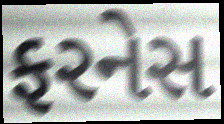
ફરનેસ